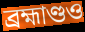
ব্রহ্মাণ্ডও